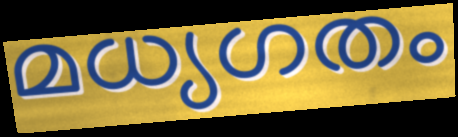
മധ്യഗതം